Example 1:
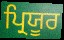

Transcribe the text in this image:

ਪ੍ਰਿਯੂਰ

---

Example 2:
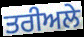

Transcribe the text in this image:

ਤਰੀਅਲੇ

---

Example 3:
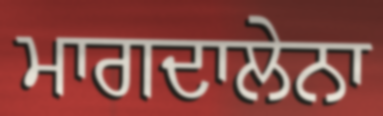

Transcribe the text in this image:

ਮਾਗਦਾਲੇਨਾ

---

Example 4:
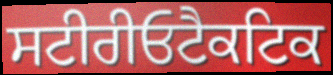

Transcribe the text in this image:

ਸਟੀਰੀਓਟੈਕਟਿਕ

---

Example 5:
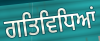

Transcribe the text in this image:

ਗਤਿਵਿਧਿਆਂ